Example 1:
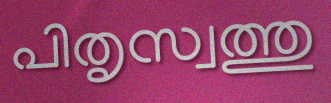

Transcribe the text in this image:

പിതൃസ്വത്തു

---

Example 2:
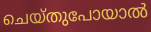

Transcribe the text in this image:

ചെയ്തുപോയാൽ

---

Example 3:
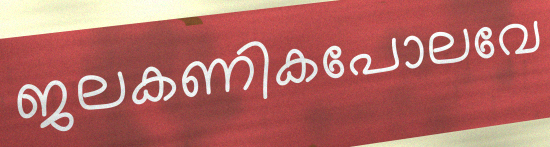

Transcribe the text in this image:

ജലകണികപോലവേ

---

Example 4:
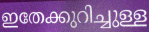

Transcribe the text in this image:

ഇതേക്കുറിച്ചുള്ള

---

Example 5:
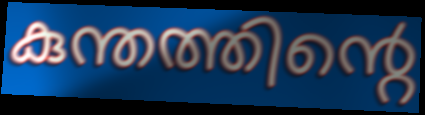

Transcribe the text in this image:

കുന്തത്തിന്റെ